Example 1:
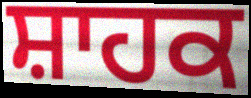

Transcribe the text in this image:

ਸ਼ਾਹਕ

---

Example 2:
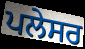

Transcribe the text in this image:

ਪਲੇਸਰ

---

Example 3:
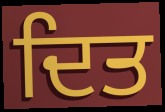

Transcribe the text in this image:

ਦਿਤ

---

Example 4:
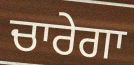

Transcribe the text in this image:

ਚਾਰੇਗਾ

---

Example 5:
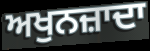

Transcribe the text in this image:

ਅਖੁਨਜ਼ਾਦਾ